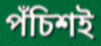
পঁচিশই